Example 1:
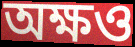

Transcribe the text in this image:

অক্ষও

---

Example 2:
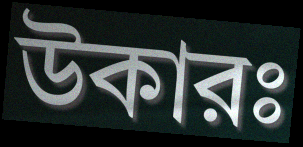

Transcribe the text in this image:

উকারঃ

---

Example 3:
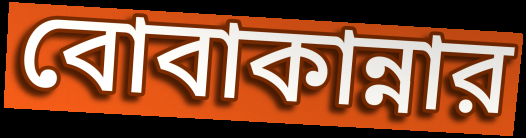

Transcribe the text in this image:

বোবাকান্নার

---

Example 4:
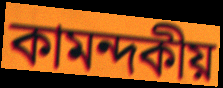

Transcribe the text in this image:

কামন্দকীয়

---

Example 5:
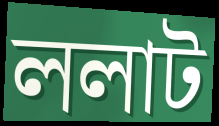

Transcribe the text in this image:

ললাট